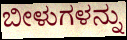
ಬೀಳುಗಳನ್ನು